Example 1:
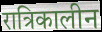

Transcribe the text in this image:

रात्रिकालीन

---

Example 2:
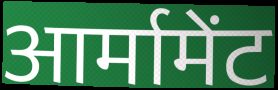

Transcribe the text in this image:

आर्मामेंट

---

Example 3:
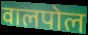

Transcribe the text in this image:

वालपोल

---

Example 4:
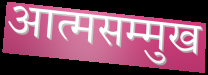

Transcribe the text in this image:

आत्मसम्मुख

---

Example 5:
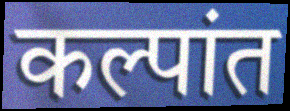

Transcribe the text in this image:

कल्पांत